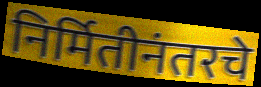
निर्मितीनंतरचे